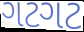
ગટગટ